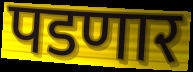
पडणार